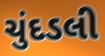
ચુંદડલી